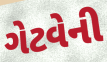
ગેટવેની